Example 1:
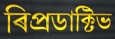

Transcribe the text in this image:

ৰিপ্ৰডাক্টিভ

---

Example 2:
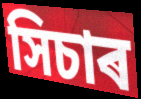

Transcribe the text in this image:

সিচাৰ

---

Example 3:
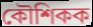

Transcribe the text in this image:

কৌশিকক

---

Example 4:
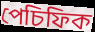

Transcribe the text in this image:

পেচিফিক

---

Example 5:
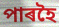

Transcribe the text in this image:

পাৰহৈ